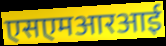
एसएमआरआई